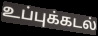
உப்புக்கடல்